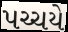
પચ્ચયે